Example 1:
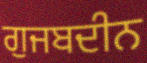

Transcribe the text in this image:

ਗੁਜਬਦੀਨ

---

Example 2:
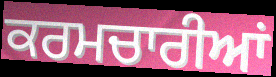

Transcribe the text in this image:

ਕਰਮਚਾਰੀਆਂ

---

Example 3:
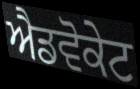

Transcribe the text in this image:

ਐਡਵੋਕੇਟ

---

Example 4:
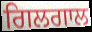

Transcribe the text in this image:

ਗਿਲਗਾਲ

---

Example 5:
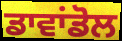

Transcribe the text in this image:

ਡਾਵਾਂਡੋਲ